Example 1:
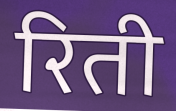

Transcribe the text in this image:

रिती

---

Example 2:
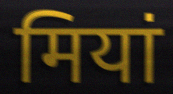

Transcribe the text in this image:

मियां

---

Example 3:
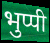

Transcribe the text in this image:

भुप्पी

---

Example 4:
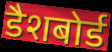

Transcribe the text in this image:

डैशबोर्ड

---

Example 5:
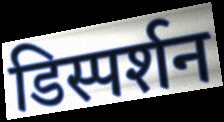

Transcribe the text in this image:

डिस्पर्शन